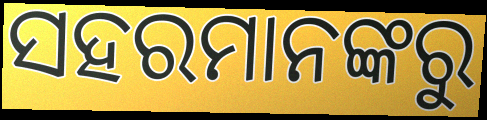
ସହରମାନଙ୍କରୁ